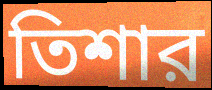
তিশার